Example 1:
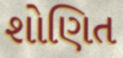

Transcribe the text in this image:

શોણિત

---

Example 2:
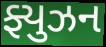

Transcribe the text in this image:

ફ્યુઝન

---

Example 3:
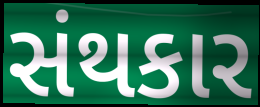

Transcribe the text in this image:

સંથકાર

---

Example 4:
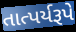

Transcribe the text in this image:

તાત્પર્યરૂપે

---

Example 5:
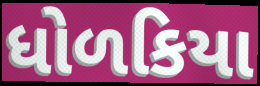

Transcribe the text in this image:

ધોળકિયા